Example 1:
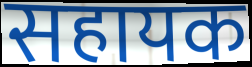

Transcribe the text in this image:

सहायक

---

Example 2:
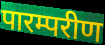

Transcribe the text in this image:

पारम्परीण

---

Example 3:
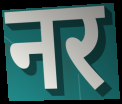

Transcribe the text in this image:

नर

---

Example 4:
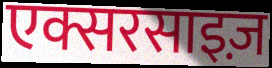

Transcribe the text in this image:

एक्सरसाइज़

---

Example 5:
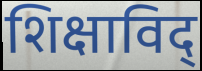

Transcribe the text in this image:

शिक्षाविद्